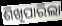
ଶିଖିପାରିଲା